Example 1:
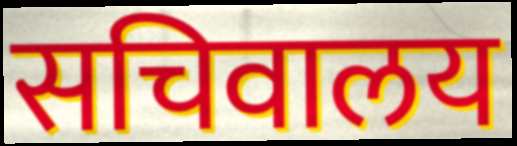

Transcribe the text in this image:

सचिवालय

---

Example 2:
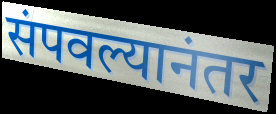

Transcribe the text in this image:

संपवल्यानंतर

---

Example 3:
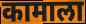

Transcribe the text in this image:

कामाला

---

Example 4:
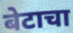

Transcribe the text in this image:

बेटाचा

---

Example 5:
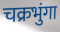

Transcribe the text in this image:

चक्रभुंगा